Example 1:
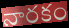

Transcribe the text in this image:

నారకం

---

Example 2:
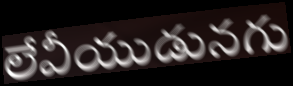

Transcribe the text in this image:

లేవీయుడునగు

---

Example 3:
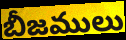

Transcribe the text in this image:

బీజములు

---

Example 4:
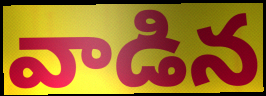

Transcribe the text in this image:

వాడిన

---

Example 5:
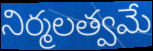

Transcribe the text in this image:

నిర్మలత్వమే